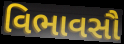
વિભાવસૌ